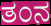
ತಂನ